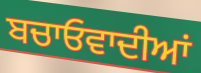
ਬਚਾਓਵਾਦੀਆਂ